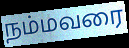
நம்மவரை